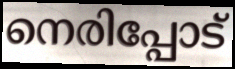
നെരിപ്പോട്